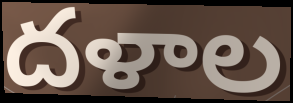
దళాల